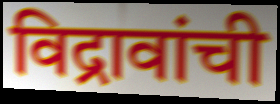
विद्रावांची